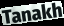
Tanakh